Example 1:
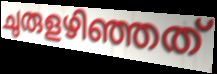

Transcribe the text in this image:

ചുരുളഴിഞ്ഞത്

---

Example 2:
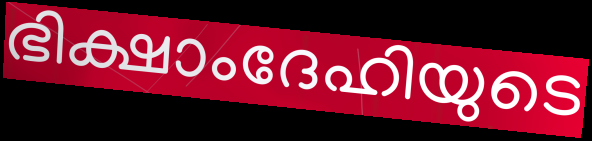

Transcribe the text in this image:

ഭിക്ഷാംദേഹിയുടെ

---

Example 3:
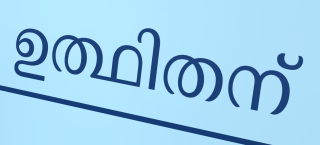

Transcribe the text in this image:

ഉത്ഥിതന്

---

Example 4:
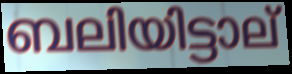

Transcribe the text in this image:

ബലിയിട്ടാല്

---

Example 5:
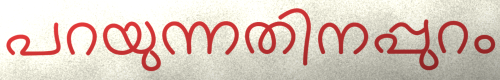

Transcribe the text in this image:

പറയുന്നതിനപ്പുറം